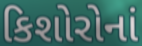
કિશોરોનાં